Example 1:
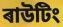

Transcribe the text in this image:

ৰাউটিং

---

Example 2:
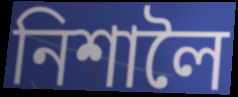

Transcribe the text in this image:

নিশালৈ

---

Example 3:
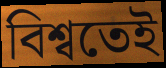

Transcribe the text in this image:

বিশ্বতেই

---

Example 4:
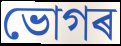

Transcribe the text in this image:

ভোগৰ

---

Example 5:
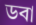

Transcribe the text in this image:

ডবা